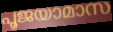
പൂജയാമാസ